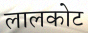
लालकोट